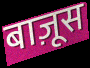
बाज़ूस